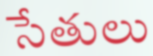
సేతులు